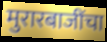
मुरारबाजींचा